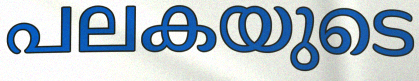
പലകയുടെ